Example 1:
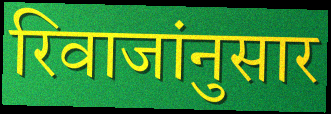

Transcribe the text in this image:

रिवाजांनुसार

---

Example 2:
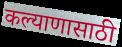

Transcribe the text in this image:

कल्याणासाठी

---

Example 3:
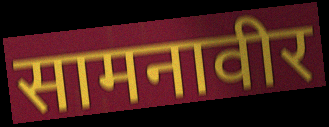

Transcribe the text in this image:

सामनावीर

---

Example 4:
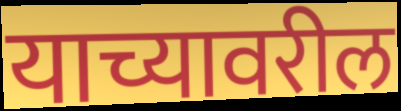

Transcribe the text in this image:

याच्यावरील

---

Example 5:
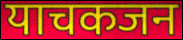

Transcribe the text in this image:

याचकजन